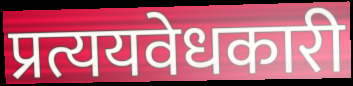
प्रत्ययवेधकारी